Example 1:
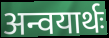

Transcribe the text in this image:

अन्वयार्थः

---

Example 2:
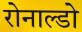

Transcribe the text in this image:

रोनाल्डो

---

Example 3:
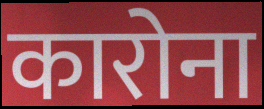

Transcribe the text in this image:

कारोना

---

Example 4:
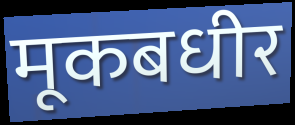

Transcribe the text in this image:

मूकबधीर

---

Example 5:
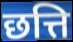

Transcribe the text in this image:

छत्ति